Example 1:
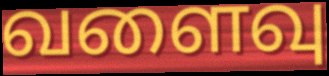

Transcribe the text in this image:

வளைவு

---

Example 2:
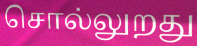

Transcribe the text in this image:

சொல்லுறது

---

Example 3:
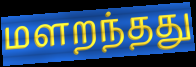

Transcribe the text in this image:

மளறந்தது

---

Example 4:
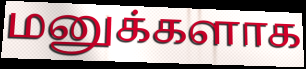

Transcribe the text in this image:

மனுக்களாக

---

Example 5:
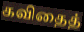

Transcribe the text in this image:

கவிதைத்